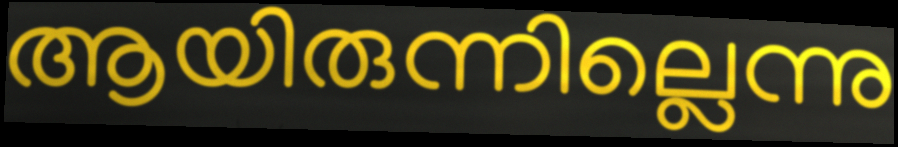
ആയിരുന്നില്ലെന്നു